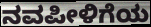
ನವಪೀಳಿಗೆಯ